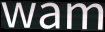
wam